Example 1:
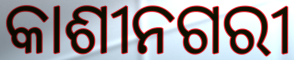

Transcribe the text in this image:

କାଶୀନଗରୀ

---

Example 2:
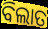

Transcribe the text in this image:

ବିଲାତ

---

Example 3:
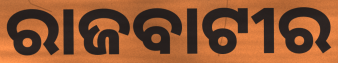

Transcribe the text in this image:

ରାଜବାଟୀର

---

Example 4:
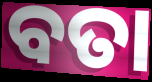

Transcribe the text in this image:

ବତା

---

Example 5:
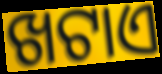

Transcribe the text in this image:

ଖଟାଏ